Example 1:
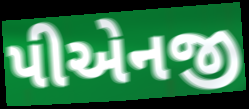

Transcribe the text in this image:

પીએનજી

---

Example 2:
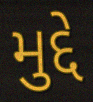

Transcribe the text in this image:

મુદ્દે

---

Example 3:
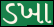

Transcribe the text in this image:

ડખા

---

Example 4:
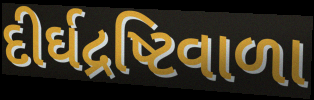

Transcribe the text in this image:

દીર્ઘદ્રષ્ટિવાળા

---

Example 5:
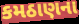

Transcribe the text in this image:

કમઠાણના